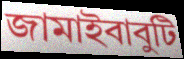
জামাইবাবুটি